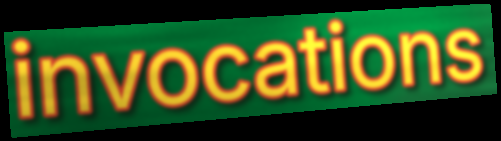
invocations